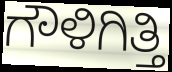
ಗೌಳಿಗಿತ್ತಿ